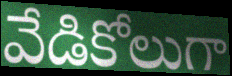
వేడికోలుగా